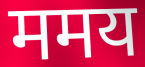
ममय